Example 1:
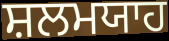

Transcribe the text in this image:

ਸ਼ਲਮਯਾਹ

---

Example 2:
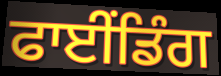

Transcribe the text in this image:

ਫਾਈਂਡਿੰਗ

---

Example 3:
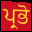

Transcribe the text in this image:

ਪ੍ਰਭੋ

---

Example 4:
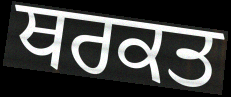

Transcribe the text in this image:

ਥਰਕਤ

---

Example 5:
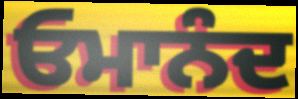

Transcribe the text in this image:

ਓਮਾਨੰਦ